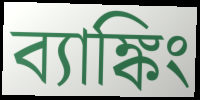
ব্যাঙ্কিং